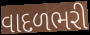
વાદળભરી